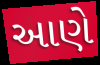
આણે